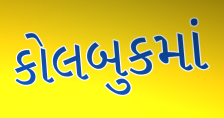
કોલબુકમાં